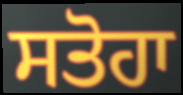
ਸਤੋਹਾ